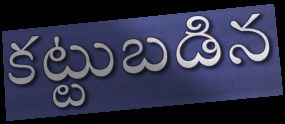
కట్టుబడిన